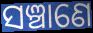
ସଞ୍ଚାଣେ